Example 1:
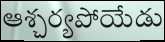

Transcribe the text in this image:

ఆశ్చర్యపోయేడు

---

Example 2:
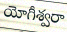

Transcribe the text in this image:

యోగీశ్వరా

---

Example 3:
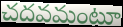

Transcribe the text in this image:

చదవమంటూ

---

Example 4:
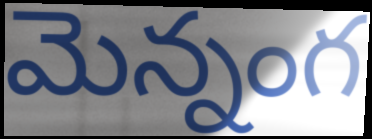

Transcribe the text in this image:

మెన్నంగ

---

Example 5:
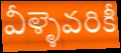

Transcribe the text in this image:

వీళ్ళెవరికీ